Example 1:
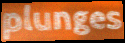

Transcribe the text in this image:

plunges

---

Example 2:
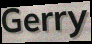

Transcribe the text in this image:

Gerry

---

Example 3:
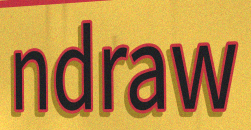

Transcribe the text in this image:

ndraw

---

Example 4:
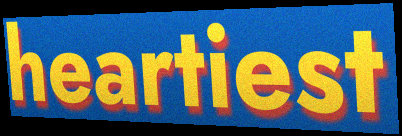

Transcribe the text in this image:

heartiest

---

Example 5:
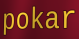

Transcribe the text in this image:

pokar